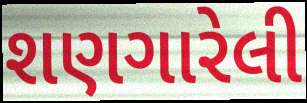
શણગારેલી